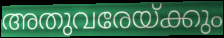
അതുവരേയ്ക്കും